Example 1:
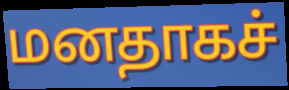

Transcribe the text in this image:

மனதாகச்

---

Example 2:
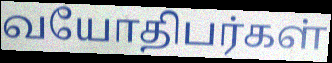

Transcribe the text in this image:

வயோதிபர்கள்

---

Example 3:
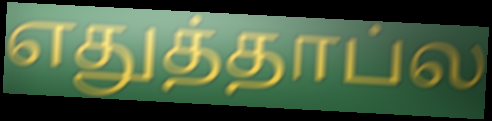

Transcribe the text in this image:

எதுத்தாப்ல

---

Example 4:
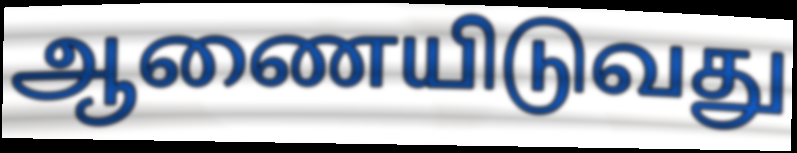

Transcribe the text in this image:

ஆணையிடுவது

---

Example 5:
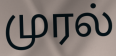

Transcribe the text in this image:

முரல்